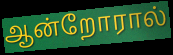
ஆன்றோரால்